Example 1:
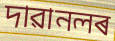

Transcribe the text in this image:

দাৱানলৰ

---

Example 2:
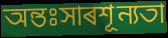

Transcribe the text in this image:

অন্তঃসাৰশূন্যতা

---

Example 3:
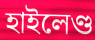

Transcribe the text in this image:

হাইলেণ্ড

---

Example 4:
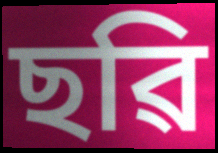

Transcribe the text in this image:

ছৱি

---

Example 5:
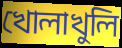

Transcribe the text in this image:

খোলাখুলি